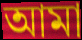
আমা